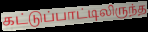
கட்டுப்பாட்டிலிருந்த